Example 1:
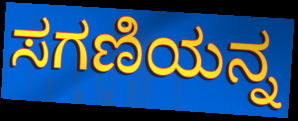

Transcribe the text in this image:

ಸಗಣಿಯನ್ನ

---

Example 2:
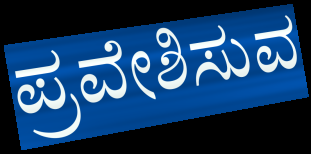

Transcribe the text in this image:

ಪ್ರವೇಶಿಸುವ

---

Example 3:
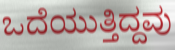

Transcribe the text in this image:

ಒದೆಯುತ್ತಿದ್ದವು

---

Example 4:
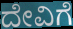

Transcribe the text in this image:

ದೇವಿಗೆ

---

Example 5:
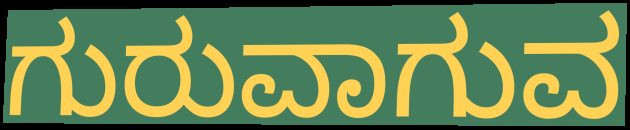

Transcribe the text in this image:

ಗುರುವಾಗುವ